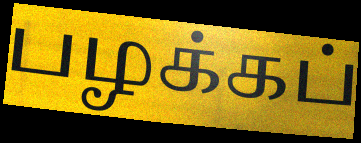
பழக்கப்